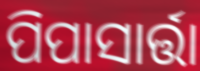
ପିପାସାର୍ତ୍ତା